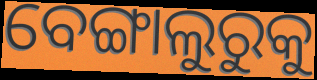
ବେଙ୍ଗାଲୁରୁକୁ